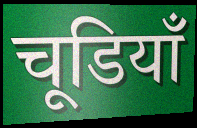
चूडियाँ